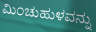
ಮಿಂಚುಹುಳವನ್ನು